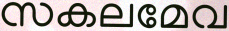
സകലമേവ